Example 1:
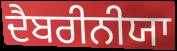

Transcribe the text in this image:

ਦੈਬਰੀਨੀਯਾ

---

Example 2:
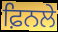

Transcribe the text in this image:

ਫ਼ਿਨਲੇ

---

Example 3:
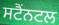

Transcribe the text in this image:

ਸਟੈਂਨਟਲ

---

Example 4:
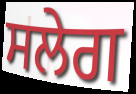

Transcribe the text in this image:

ਸਲੇਗ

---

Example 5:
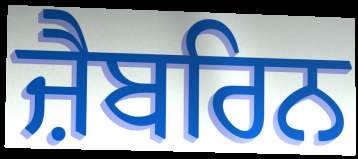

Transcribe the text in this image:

ਜ਼ੈਬਰਿਨ